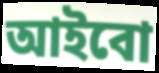
আইবো